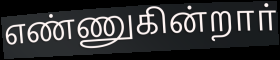
எண்ணுகின்றார்